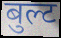
बुल्ट